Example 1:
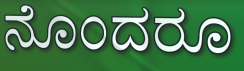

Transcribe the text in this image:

ನೊಂದರೂ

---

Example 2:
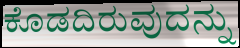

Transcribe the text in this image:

ಕೊಡದಿರುವುದನ್ನು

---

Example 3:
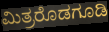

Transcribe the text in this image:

ಮಿತ್ರರೊಡಗೂಡಿ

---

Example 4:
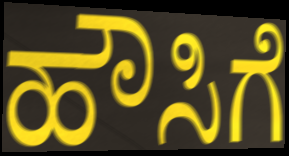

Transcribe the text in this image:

ಹೌಸಿಗೆ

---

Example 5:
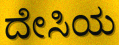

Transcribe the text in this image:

ದೇಸಿಯ